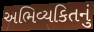
અભિવ્યકિતનું